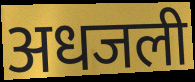
अधजली